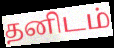
தனிடம்